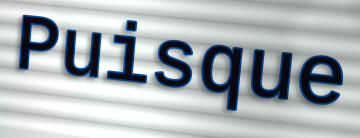
Puisque